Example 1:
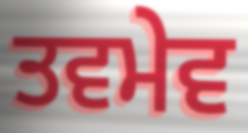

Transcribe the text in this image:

ਤਵਮੇਵ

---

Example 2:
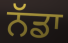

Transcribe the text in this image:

ਨੱਡਾ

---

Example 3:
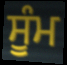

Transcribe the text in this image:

ਸੂੰਮ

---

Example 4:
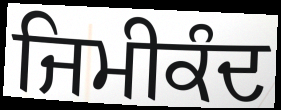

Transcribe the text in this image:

ਜਿਮੀਕੰਦ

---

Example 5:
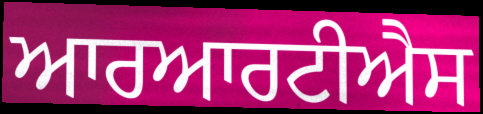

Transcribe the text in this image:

ਆਰਆਰਟੀਐਸ